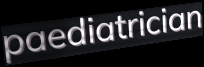
paediatrician